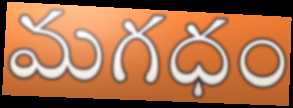
మగధం